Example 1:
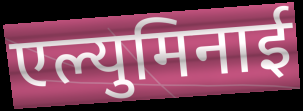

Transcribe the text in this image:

एल्युमिनाई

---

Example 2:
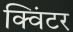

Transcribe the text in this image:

क्विंटर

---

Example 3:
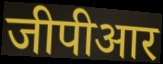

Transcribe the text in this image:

जीपीआर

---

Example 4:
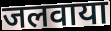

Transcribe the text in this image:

जलवाया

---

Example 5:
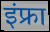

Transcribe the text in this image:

इंफ्रा